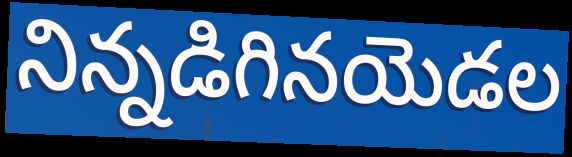
నిన్నడిగినయెడల